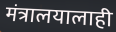
मंत्रालयालाही